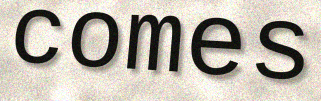
comes